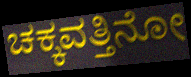
ಚಕ್ಕವತ್ತಿನೋ